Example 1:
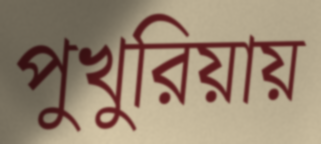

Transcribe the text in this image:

পুখুরিয়ায়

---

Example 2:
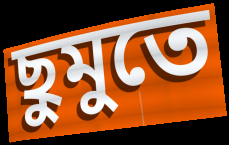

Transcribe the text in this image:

ছুমুতে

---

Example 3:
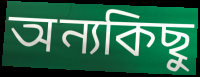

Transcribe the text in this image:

অন্যকিছু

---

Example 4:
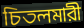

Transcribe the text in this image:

চিতলমারী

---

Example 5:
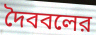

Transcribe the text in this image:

দৈববলের